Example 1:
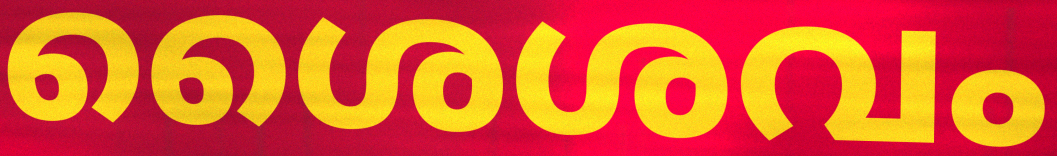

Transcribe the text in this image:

ശൈശവം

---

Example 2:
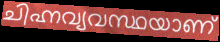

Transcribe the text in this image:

ചിഹ്നവ്യവസ്ഥയാണ്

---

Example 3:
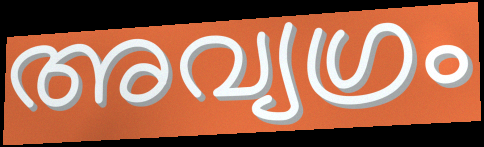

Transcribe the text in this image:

അവ്യഗ്രം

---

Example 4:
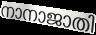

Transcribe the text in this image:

നാനാജാതി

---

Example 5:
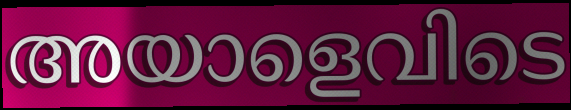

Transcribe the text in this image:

അയാളെവിടെ